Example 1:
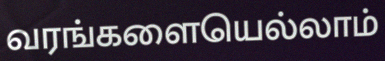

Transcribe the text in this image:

வரங்களையெல்லாம்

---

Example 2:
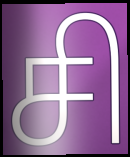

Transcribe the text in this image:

சி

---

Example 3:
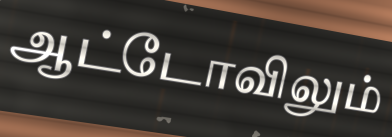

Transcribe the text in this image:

ஆட்டோவிலும்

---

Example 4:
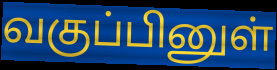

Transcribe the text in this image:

வகுப்பினுள்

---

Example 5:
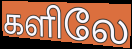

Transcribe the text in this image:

களிலே